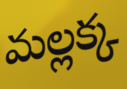
మల్లక్క